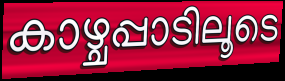
കാഴ്ചപ്പാടിലൂടെ